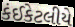
કંઈકેટલીયે